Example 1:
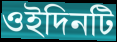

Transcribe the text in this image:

ওইদিনটি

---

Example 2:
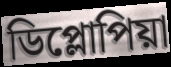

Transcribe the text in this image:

ডিপ্লোপিয়া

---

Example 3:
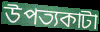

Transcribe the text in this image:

উপত্যকাটা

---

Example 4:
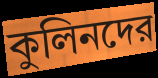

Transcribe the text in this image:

কুলিনদের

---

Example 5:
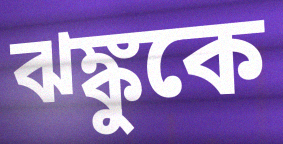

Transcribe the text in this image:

ঝঙ্কুকে